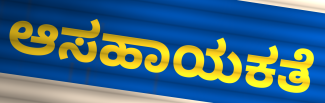
ಆಸಹಾಯಕತೆ